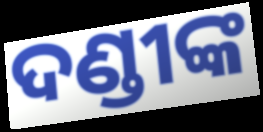
ଦଣ୍ଡୀଙ୍କ